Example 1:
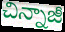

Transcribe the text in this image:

చిన్నాజీ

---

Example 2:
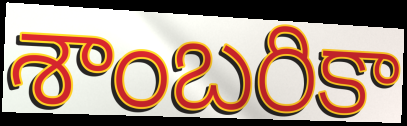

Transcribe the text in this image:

శాంబరికా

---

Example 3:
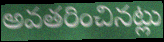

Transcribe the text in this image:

అవతరించినట్లు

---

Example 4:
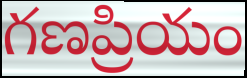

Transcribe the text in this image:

గణప్రియం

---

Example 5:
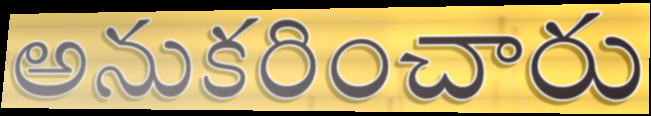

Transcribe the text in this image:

అనుకరించారు